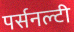
पर्सनल्टी